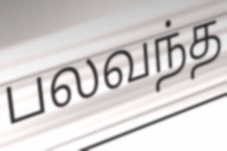
பலவந்த